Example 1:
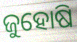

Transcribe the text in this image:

ଜୁହୋଷି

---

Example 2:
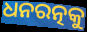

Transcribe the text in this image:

ଧନରତ୍ନକୁ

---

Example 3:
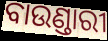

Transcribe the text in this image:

ବାଉଣ୍ଡାରୀ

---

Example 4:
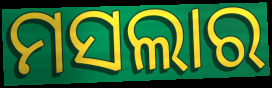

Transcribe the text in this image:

ମସଲାର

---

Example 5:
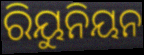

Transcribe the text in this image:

ରିୟୁନିୟନ